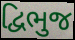
દ્વિભુજ